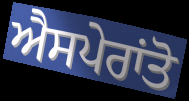
ਐਸਪੇਰਾਂਤੋ